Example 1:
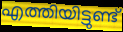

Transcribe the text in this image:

എത്തിയിട്ടുണ്ട്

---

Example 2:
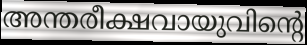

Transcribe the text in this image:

അന്തരീക്ഷവായുവിന്റെ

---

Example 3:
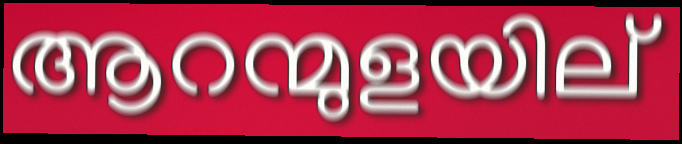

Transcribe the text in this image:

ആറന്മുളയില്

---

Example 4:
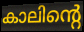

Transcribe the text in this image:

കാലിന്റെ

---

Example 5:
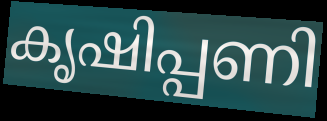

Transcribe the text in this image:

കൃഷിപ്പണി